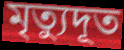
মৃত্যুদূত